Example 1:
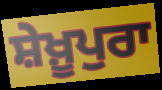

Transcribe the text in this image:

ਸ਼ੇਖ਼ੂਪੁਰਾ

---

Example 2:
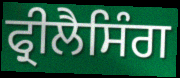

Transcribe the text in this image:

ਫ੍ਰੀਲੈਸਿੰਗ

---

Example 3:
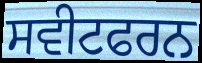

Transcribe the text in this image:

ਸਵੀਟਫਰਨ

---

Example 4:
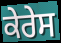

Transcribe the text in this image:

ਕੇਰੇਸ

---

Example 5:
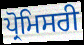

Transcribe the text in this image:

ਪ੍ਰੋਮਿਸਰੀ